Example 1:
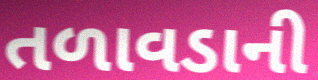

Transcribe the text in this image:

તળાવડાની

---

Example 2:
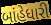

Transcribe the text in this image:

બાંહેધારી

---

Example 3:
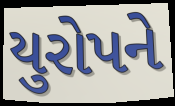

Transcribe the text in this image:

યુરોપને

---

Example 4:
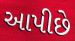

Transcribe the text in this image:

આપીછે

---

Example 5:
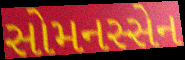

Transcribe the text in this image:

સોમનસ્સેન